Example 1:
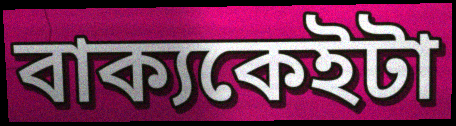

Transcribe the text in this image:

বাক্যকেইটা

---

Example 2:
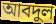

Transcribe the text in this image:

আবদুল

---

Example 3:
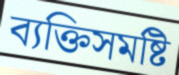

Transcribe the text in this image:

ব্যক্তিসমষ্টি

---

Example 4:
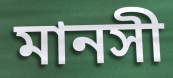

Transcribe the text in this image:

মানসী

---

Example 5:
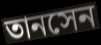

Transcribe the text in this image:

তানসেন